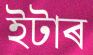
ইটাৰ